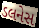
ડલનેસ